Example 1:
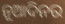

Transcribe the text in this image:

ନୂଆଦିନର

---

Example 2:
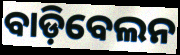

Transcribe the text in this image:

ବାଡ଼ିବେଲନ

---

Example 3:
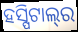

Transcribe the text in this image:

ହସ୍ପିଟାଲ୍‌ର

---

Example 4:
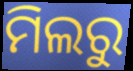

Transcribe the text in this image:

ମିଲରୁ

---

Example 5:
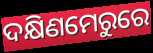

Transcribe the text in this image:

ଦକ୍ଷିଣମେରୁରେ